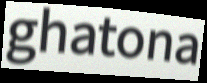
ghatona